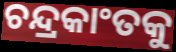
ଚନ୍ଦ୍ରକାଂତକୁ